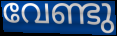
വേണ്ടു